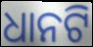
ଧାନଟି